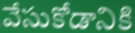
వేసుకోడానికి